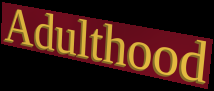
Adulthood